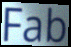
Fab